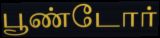
பூண்டோர்